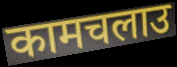
कामचलाउ